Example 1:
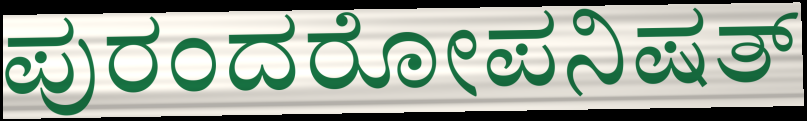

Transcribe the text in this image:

ಪುರಂದರೋಪನಿಷತ್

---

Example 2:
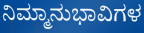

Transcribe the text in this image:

ನಿಮ್ಮಾನುಭಾವಿಗಳ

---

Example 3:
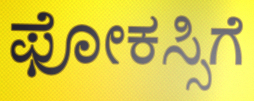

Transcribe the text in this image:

ಫೋಕಸ್ಸಿಗೆ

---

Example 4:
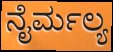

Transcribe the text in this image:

ನೈರ್ಮಲ್ಯ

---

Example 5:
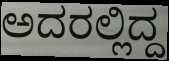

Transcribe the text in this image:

ಅದರಲ್ಲಿದ್ದ